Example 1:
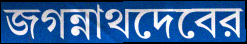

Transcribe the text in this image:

জগন্নাথদেবের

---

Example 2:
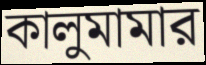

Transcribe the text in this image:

কালুমামার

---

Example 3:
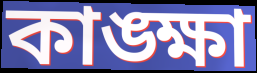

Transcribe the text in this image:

কাঙ্ক্ষা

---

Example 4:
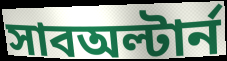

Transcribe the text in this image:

সাবঅল্টার্ন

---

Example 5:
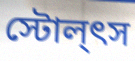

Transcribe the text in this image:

স্টোল্ৎস